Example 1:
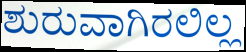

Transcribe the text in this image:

ಶುರುವಾಗಿರಲಿಲ್ಲ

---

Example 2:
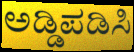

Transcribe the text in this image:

ಅಡ್ಡಿಪಡಿಸಿ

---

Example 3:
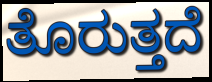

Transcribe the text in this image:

ತೊರುತ್ತದೆ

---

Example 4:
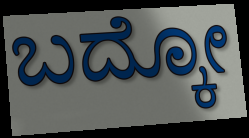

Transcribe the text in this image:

ಬದ್ಕೋ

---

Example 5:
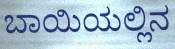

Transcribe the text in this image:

ಬಾಯಿಯಲ್ಲಿನ